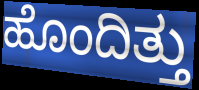
ಹೊಂದಿತ್ತು